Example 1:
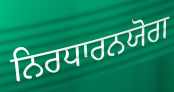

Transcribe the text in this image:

ਨਿਰਧਾਰਨਯੋਗ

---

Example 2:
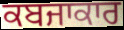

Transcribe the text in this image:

ਕਬਜਾਕਾਰ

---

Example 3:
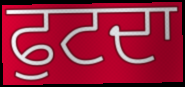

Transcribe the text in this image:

ਫੁਟਦਾ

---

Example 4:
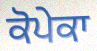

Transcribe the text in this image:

ਕੋਪੇਕਾ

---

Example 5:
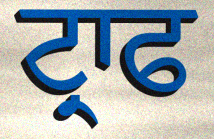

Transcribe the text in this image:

ਟ੍ਰਾਫ